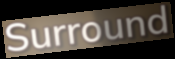
Surround